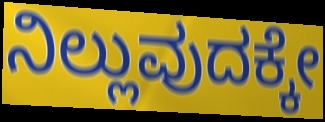
ನಿಲ್ಲುವುದಕ್ಕೇ